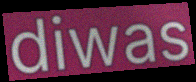
diwas